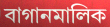
বাগানমালিক